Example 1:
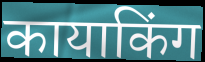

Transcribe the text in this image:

कायाकिंग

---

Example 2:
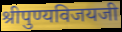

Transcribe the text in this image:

श्रीपुण्यविजयजी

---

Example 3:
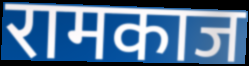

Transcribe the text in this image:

रामकाज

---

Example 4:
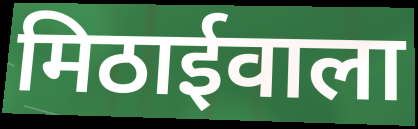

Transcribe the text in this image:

मिठाईवाला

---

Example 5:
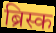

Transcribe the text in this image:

ब्रिस्क